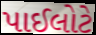
પાઈલોટે